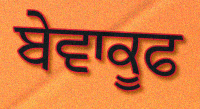
ਬੇਵਾਕੂਫ